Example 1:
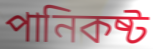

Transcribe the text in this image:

পানিকষ্ট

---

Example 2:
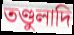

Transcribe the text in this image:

তণ্ডুলাদি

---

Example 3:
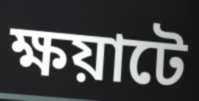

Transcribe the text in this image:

ক্ষয়াটে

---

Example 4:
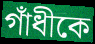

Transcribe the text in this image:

গাঁধীকে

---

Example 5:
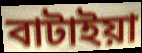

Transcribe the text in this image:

বাটাইয়া